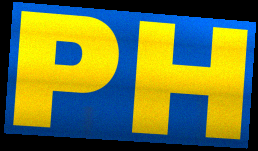
PH